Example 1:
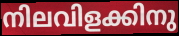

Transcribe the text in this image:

നിലവിളക്കിനു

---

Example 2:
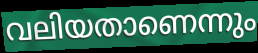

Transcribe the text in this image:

വലിയതാണെന്നും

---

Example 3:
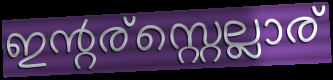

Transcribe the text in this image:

ഇന്റര്സ്റ്റെല്ലാര്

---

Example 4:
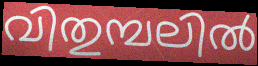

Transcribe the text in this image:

വിതുമ്പലിൽ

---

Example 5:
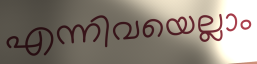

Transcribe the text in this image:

എന്നിവയെല്ലാം